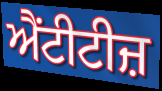
ਐਂਟੀਟੀਜ਼